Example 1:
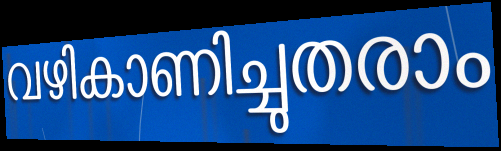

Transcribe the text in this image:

വഴികാണിച്ചുതരാം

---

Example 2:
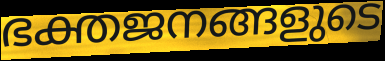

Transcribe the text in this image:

ഭക്തജനങ്ങളുടെ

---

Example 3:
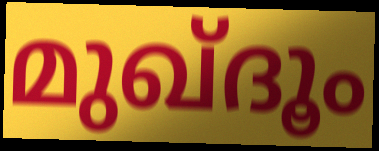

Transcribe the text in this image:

മുഖ്ദൂം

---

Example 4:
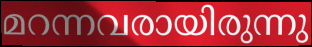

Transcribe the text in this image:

മറന്നവരായിരുന്നു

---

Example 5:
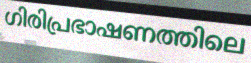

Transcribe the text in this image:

ഗിരിപ്രഭാഷണത്തിലെ